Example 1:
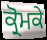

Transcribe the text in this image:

ਕ੍ਰੋਮਕੇ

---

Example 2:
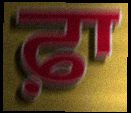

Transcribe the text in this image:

ਫ਼ਾ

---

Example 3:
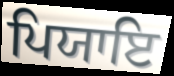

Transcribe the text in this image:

ਪਿਯਾਇ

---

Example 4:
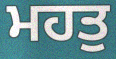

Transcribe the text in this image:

ਮਹਤੁ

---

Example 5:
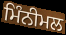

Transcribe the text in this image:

ਮਿੰਨੀਮਲ